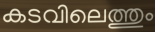
കടവിലെത്തും